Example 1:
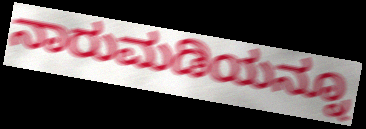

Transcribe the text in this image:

ನಾರುಮಡಿಯನ್ನೂ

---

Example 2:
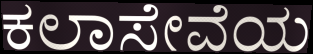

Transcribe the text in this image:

ಕಲಾಸೇವೆಯ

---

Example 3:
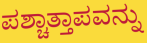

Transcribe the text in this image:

ಪಶ್ಚಾತ್ತಾಪವನ್ನು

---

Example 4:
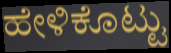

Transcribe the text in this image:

ಹೇಳಿಕೊಟ್ಟು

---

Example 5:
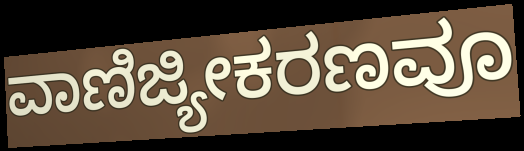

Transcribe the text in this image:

ವಾಣಿಜ್ಯೀಕರಣವೂ